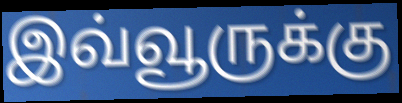
இவ்வூருக்கு